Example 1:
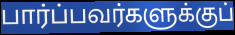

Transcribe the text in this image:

பார்ப்பவர்களுக்குப்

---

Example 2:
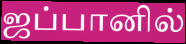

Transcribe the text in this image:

ஜப்பானில்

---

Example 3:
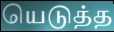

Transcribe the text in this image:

யெடுத்த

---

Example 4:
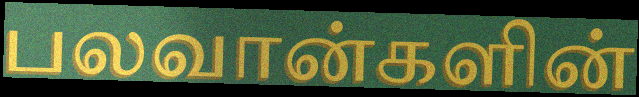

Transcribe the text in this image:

பலவான்களின்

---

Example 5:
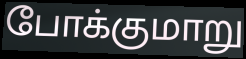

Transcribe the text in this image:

போக்குமாறு